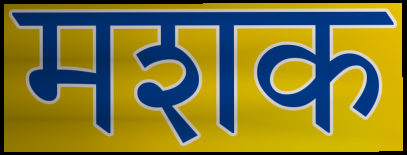
मशक